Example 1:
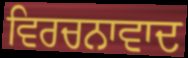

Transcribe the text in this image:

ਵਿਰਚਨਾਵਾਦ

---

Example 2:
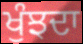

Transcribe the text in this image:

ਖੁੰਝਦਾ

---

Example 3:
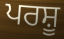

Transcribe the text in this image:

ਪਰਸ਼ੂ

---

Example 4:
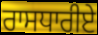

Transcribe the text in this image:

ਰਾਸਧਾਰੀਏ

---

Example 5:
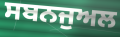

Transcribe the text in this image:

ਸਬਨਜੁਅਲ